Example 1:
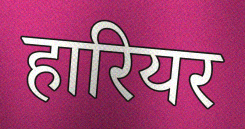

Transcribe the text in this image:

हारियर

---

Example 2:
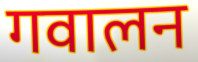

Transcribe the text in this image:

गवालन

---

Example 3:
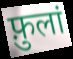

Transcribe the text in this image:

फ़ुलां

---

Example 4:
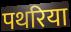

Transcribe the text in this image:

पथरिया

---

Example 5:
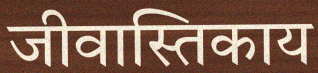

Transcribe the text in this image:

जीवास्तिकाय